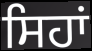
ਸਿਹਾਂ